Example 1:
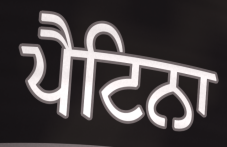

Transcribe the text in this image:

ਪੈਟਿਨਾ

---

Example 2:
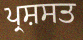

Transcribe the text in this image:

ਪ੍ਰਸ਼ਸਤ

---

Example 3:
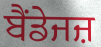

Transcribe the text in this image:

ਬੈਂਡੇਜਜ਼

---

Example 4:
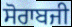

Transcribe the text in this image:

ਸੋਰਾਬਜੀ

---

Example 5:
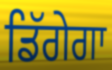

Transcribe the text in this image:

ਡਿੱਗੇਗਾ